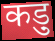
कड़ु